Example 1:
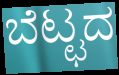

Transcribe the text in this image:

ಬೆಟ್ಟದ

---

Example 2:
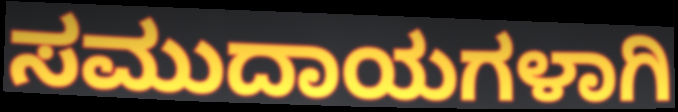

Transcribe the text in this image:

ಸಮುದಾಯಗಳಾಗಿ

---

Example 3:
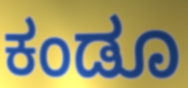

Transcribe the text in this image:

ಕಂಡೂ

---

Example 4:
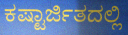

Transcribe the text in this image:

ಕಷ್ಟಾರ್ಜಿತದಲ್ಲಿ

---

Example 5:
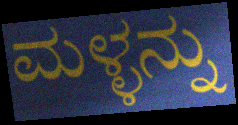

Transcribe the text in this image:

ಮಳ್ಳನ್ನು